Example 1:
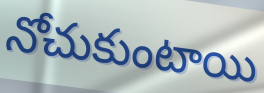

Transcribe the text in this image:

నోచుకుంటాయి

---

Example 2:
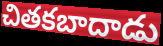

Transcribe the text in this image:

చితకబాదాడు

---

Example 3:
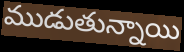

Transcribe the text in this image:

ముడుతున్నాయి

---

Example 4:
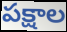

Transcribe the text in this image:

పక్షాల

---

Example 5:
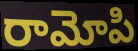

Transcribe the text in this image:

రామోపి